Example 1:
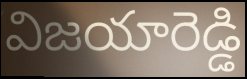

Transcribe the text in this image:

విజయారెడ్డి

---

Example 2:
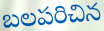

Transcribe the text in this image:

బలపరిచిన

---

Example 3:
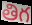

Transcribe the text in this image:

తిగ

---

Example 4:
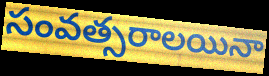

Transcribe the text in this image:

సంవత్సరాలయినా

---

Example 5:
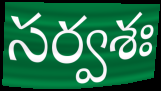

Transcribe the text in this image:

సర్వశః